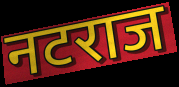
नटराज